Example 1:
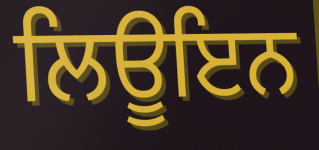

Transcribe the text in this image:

ਲਿਊਇਨ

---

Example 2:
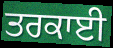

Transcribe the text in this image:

ਤਰਕਾਈ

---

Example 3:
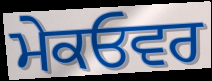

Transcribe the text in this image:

ਮੇਕਓਵਰ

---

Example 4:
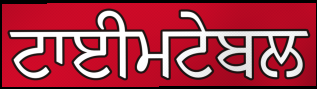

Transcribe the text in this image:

ਟਾਈਮਟੇਬਲ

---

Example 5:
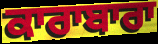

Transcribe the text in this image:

ਕਾਰਾਬਾਰਾ